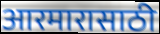
आरमारासाठी